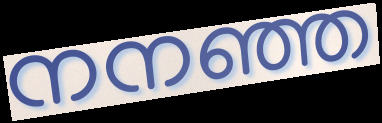
നനഞ്ഞ